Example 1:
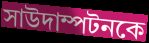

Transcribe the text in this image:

সাউদাম্পটনকে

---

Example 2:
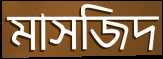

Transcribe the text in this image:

মাসজিদ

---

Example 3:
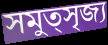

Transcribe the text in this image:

সমুত্সৃজ্য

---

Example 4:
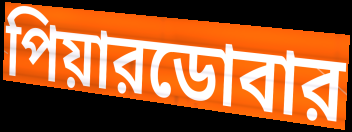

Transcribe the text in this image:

পিয়ারডোবার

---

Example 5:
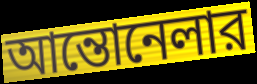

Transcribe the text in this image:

আন্তোনেলার